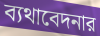
ব্যথাবেদনার